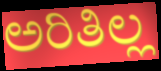
ಅರಿತಿಲ್ಲ